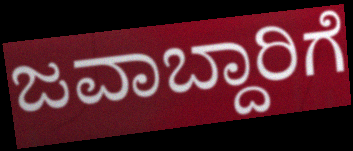
ಜವಾಬ್ದಾರಿಗೆ